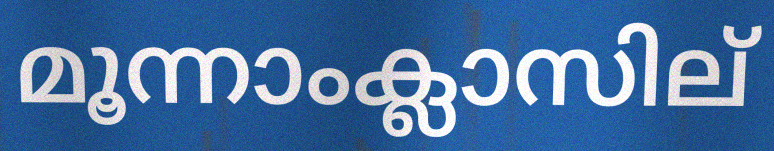
മൂന്നാംക്ലാസില്